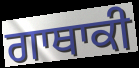
ਗਾਥਾਕੀ